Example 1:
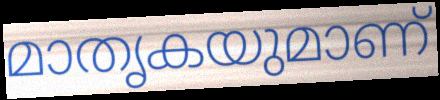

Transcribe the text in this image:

മാതൃകയുമാണ്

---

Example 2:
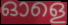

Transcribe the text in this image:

ഓളെ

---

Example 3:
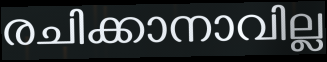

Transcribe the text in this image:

രചിക്കാനാവില്ല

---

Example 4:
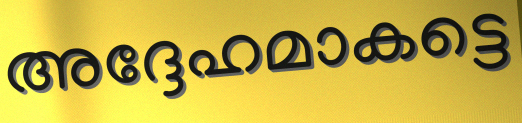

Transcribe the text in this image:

അദ്ദേഹമാകട്ടെ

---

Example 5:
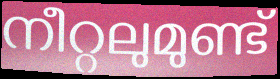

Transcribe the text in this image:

നീറ്റലുമുണ്ട്